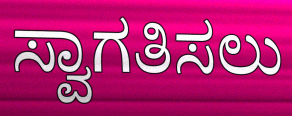
ಸ್ವಾಗತಿಸಲು